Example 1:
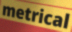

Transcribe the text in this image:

metrical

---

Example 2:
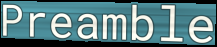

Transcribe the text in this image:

Preamble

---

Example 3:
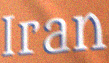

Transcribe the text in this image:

Iran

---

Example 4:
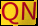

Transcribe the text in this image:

QN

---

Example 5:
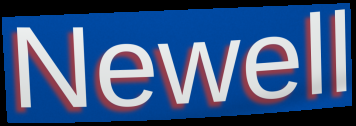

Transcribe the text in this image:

Newell